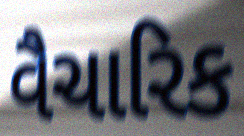
વૈચારિક